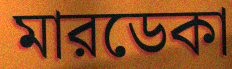
মারডেকা